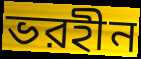
ভরহীন